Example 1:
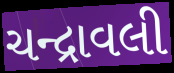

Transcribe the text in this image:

ચન્દ્રાવલી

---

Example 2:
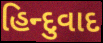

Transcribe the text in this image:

હિન્દુવાદ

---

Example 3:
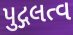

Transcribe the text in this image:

પુદ્ગલત્વ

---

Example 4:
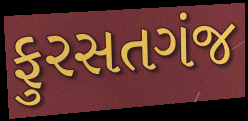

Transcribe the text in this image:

ફુરસતગંજ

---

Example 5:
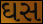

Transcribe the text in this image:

ઘસ